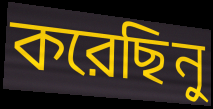
করেছিনু